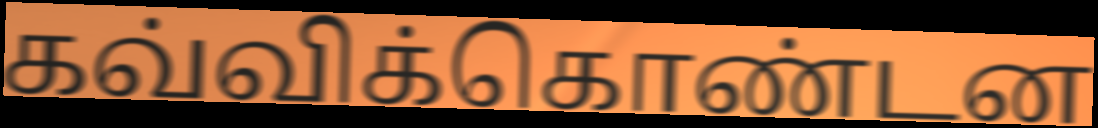
கவ்விக்கொண்டன